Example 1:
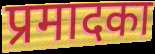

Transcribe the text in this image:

प्रमादका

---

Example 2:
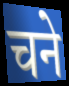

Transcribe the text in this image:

चने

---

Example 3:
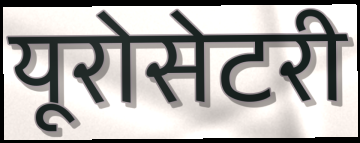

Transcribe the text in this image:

यूरोसेटरी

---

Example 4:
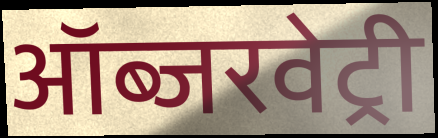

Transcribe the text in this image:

ऑब्जरवेट्री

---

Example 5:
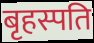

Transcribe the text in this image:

बृहस्‍पति